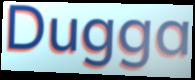
Dugga